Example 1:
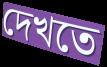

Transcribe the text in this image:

দেখতে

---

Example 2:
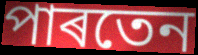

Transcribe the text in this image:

পাৰতেন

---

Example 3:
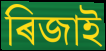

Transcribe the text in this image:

ৰিজাই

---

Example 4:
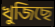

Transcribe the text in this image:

খুজিছে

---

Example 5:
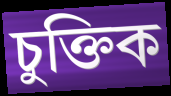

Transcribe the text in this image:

চুক্তিক